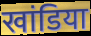
खांडिया